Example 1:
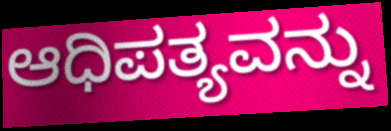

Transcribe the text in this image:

ಆಧಿಪತ್ಯವನ್ನು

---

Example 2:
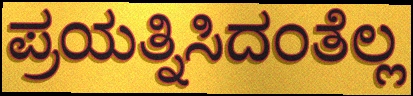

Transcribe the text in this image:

ಪ್ರಯತ್ನಿಸಿದಂತೆಲ್ಲ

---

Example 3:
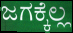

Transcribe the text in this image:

ಜಗಕ್ಕೆಲ್ಲ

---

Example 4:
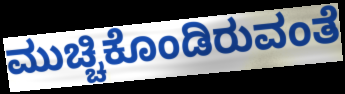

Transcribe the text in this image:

ಮುಚ್ಚಿಕೊಂಡಿರುವಂತೆ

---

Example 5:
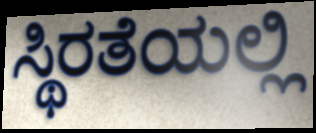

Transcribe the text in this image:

ಸ್ಥಿರತೆಯಲ್ಲಿ